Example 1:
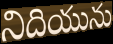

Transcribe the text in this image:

నిదియును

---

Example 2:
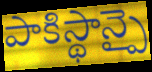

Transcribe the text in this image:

పాకిస్థాన్పై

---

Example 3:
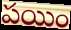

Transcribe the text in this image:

పయిం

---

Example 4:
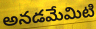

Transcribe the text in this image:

అనడమేమిటి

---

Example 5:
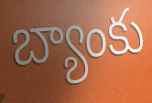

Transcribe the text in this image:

బ్యాంకు